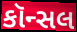
કૉન્સલ